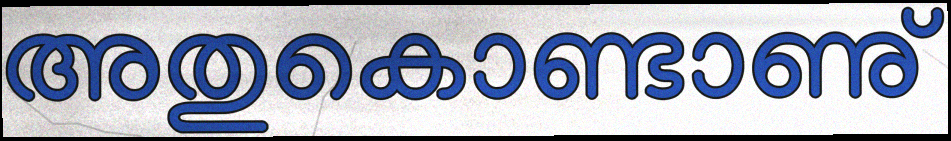
അതുകൊണ്ടാണു്